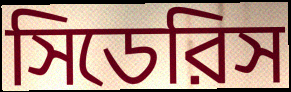
সিডেরিস